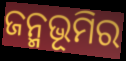
ଜନ୍ମଭୂମିର